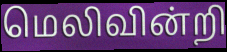
மெலிவின்றி